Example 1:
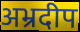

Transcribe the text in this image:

अभ्रदीप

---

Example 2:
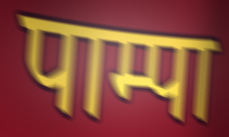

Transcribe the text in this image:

पाम्पा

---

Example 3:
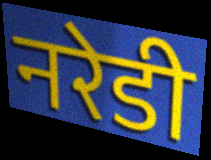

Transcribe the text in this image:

नरेडी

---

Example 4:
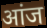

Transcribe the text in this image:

आंज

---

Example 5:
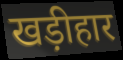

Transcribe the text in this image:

खड़ीहार